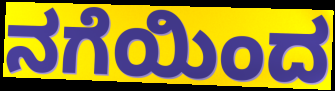
ನಗೆಯಿಂದ